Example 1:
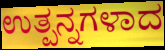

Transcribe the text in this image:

ಉತ್ಪನ್ನಗಳಾದ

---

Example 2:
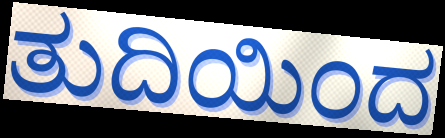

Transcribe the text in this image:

ತುದಿಯಿಂದ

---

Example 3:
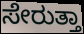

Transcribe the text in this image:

ಸೇರುತ್ತಾ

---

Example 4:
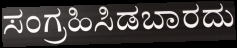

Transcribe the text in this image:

ಸಂಗ್ರಹಿಸಿಡಬಾರದು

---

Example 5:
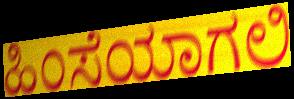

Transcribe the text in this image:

ಹಿಂಸೆಯಾಗಲಿ